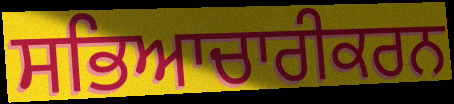
ਸਭਿਆਚਾਰੀਕਰਨ